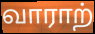
வாராற்